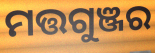
ମତ୍ତଗୁଞ୍ଜର